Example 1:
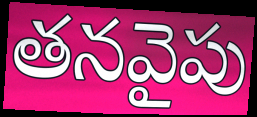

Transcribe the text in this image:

తనవైపు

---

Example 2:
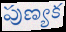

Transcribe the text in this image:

పుణ్యక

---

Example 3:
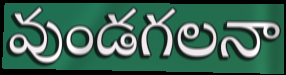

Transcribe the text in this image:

వుండగలనా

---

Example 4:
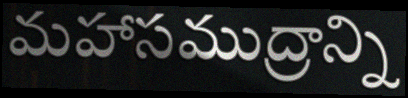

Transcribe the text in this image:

మహాసముద్రాన్ని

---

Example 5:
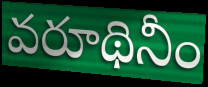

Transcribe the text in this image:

వరూథినీం